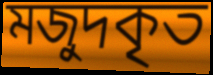
মজুদকৃত